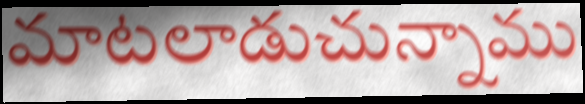
మాటలాడుచున్నాము